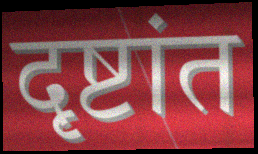
दृष्टांत